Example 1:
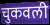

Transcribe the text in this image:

चुकवली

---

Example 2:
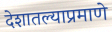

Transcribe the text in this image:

देशातल्याप्रमाणे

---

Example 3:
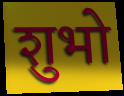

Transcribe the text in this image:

शुभो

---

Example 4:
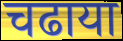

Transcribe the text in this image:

चढाया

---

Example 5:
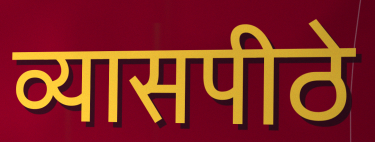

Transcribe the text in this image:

व्यासपीठे